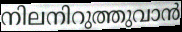
നിലനിറുത്തുവാൻ